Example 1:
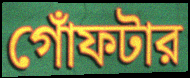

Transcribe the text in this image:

গোঁফটার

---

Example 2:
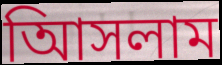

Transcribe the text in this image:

আিসলাম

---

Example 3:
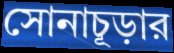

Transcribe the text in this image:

সোনাচূড়ার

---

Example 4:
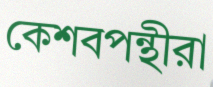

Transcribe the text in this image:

কেশবপন্থীরা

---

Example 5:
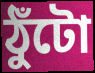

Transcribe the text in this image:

ঠুঁটো